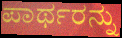
ಪಾರ್ಥರನ್ನು